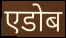
एडोब